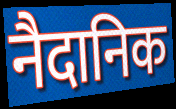
नैदानिक